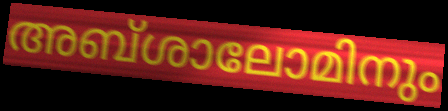
അബ്ശാലോമിനും